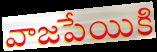
వాజపేయికి